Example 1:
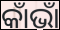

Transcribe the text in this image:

କାଁଭାଁ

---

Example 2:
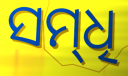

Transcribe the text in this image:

ସମ୍‌ଧି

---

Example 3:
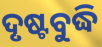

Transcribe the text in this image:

ଦୃଷ୍ଟବୁଦ୍ଧି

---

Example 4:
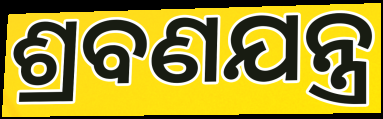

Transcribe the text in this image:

ଶ୍ରବଣଯନ୍ତ୍ର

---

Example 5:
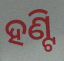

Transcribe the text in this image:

ହଣ୍ଟି